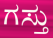
ಗಸ್ತು